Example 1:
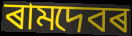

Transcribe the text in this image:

ৰামদেবৰ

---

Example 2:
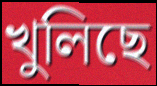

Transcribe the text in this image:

খুলিছে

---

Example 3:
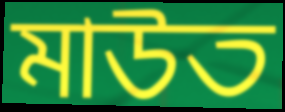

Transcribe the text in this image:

মাউত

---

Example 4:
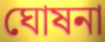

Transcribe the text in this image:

ঘোষনা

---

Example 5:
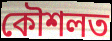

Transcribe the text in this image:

কৌশলত